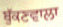
ਬੁੱਕਣਵਾਲਾ